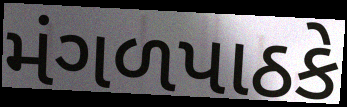
મંગળપાઠકે